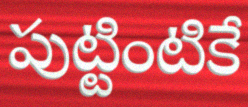
పుట్టింటికే